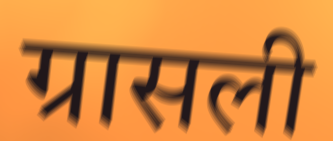
ग्रासली